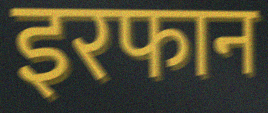
इरफान